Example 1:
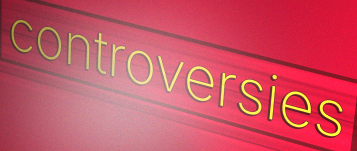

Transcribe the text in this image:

controversies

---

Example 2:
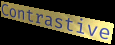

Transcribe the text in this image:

Contrastive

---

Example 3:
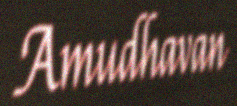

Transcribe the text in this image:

Amudhavan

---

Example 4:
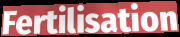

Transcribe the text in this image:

Fertilisation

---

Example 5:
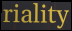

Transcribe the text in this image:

riality